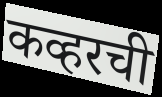
कव्हरची